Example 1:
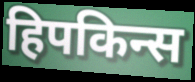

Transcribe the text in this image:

हिपकिन्स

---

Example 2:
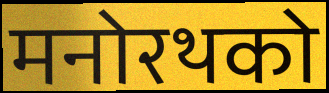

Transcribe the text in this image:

मनोरथको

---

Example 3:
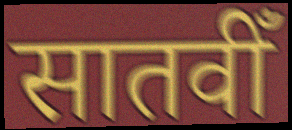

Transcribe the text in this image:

सातवीँ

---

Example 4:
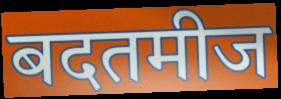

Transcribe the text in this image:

बदतमीज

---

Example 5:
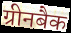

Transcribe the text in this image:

ग्रीनबैक